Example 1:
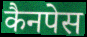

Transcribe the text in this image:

कैनपेस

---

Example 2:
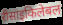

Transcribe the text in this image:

रीसाइकिलेबल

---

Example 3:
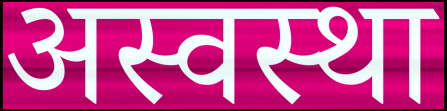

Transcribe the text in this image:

अस्वस्था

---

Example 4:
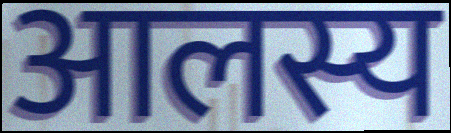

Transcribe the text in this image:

आलस्‍य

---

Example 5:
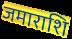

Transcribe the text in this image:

जमाराशि